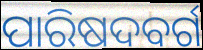
ପାରିଷଦବର୍ଗ